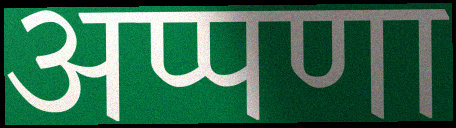
अप्पणा